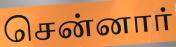
சென்னார்